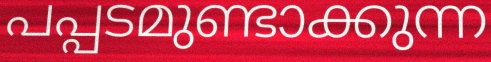
പപ്പടമുണ്ടാക്കുന്ന